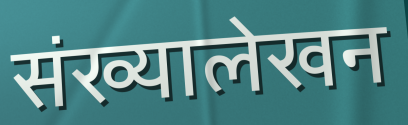
संख्यालेखन